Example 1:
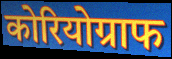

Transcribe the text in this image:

कोरियोग्राफ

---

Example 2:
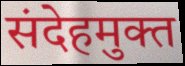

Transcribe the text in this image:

संदेहमुक्त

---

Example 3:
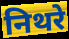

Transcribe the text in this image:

निथरे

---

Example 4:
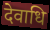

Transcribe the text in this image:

देवाधि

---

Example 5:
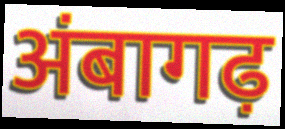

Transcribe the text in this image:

अंबागढ़